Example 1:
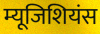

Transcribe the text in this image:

म्यूजिशियंस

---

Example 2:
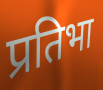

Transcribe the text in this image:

प्रतिभा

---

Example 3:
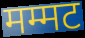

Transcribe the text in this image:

मम्मट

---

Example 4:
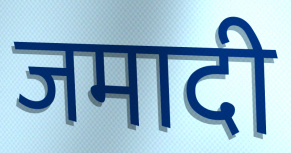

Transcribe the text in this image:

जमादी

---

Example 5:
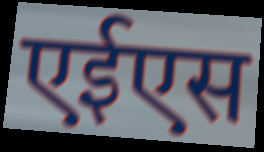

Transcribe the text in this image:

एईएस